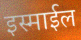
इस्माईल